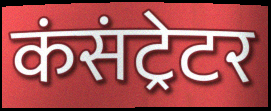
कंसंट्रेटर